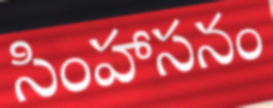
సింహాసనం